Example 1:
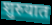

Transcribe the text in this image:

शुरुयात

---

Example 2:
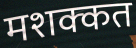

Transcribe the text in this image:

मशक्‍कत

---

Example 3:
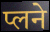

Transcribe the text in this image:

प्लने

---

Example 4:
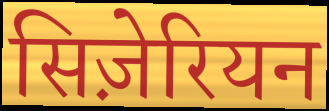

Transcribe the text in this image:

सिज़ेरियन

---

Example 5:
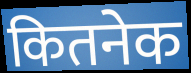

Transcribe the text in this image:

कितनेक